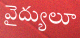
వైద్యులూ